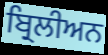
ਬ੍ਰਿਲੀਅਨ